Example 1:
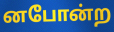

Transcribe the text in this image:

னபோன்ற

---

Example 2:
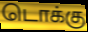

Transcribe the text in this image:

டொக்கு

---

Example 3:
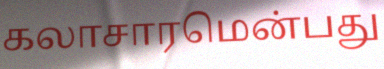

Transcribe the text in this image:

கலாசாரமென்பது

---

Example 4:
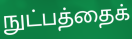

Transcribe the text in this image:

நுட்பத்தைக்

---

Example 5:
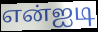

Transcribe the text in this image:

என்ஐடி